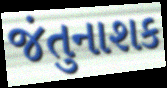
જંતુનાશક